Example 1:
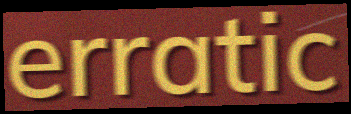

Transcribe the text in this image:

erratic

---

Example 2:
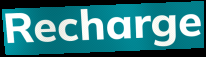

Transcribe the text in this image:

Recharge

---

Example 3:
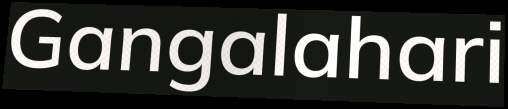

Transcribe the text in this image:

Gangalahari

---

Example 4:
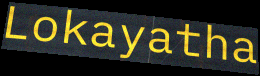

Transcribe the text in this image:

Lokayatha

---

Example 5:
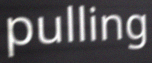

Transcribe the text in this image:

pulling